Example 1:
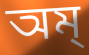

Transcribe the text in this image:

অম্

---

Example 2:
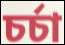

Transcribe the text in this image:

চর্চা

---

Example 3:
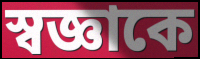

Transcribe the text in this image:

স্বজ্ঞাকে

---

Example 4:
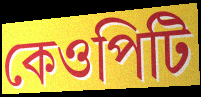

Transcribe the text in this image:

কেওপিটি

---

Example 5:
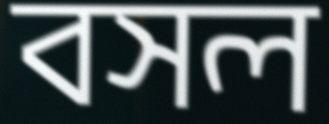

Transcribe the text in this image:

বসল